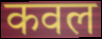
कवल